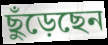
ছুঁড়েছেন